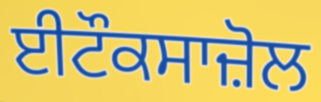
ਈਟੌਕਸਾਜ਼ੋਲ